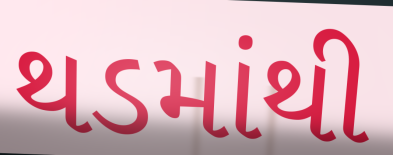
થડમાંથી